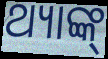
ଥ୍ୟାଙ୍କ୍